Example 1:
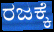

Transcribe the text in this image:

ರಜಕ್ಕೆ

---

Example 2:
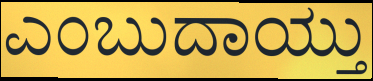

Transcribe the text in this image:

ಎಂಬುದಾಯ್ತು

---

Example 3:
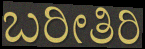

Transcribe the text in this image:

ಬರೀತಿರಿ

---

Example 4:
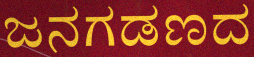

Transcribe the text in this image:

ಜನಗಡಣದ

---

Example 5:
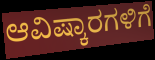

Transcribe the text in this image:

ಆವಿಷ್ಕಾರಗಳಿಗೆ